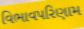
વિભાવપરિણામ